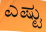
ಎಷ್ಟು